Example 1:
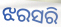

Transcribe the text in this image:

ଝରସରି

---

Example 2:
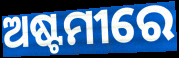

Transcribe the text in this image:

ଅଷ୍ଟମୀରେ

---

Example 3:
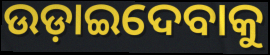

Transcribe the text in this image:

ଉଡ଼ାଇଦେବାକୁ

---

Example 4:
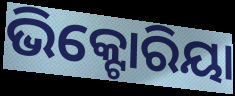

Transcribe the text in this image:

ଭିକ୍ଟୋରିୟା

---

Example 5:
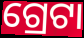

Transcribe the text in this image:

ଗ୍ରେଟା